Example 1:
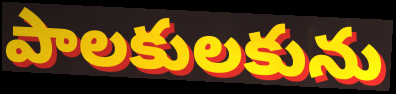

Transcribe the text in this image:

పాలకులకును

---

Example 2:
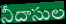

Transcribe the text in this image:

నీదాసుల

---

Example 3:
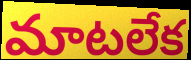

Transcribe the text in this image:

మాటలేక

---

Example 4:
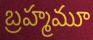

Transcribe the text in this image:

బ్రహ్మమూ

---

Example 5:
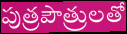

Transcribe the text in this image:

పుత్రపౌత్రులతో